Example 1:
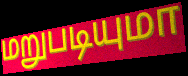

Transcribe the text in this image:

மறுபடியுமா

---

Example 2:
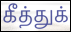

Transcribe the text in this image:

கீத்துக்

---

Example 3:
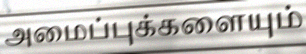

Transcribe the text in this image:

அமைப்புக்களையும்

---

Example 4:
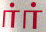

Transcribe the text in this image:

ர்ர்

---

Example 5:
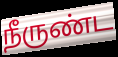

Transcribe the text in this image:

நீருண்ட